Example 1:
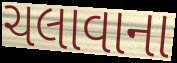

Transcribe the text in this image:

ચલાવાના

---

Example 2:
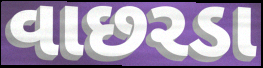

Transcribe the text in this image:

વાછરડા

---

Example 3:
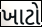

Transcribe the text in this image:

ખાટો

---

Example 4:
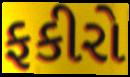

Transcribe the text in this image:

ફકીરો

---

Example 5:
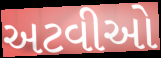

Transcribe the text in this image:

અટવીઓ